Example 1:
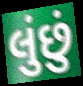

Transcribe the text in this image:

લુંછું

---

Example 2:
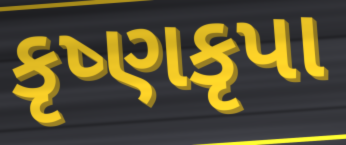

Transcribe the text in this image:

કૃષ્ણકૃપા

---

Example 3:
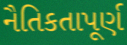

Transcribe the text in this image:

નૈતિકતાપૂર્ણ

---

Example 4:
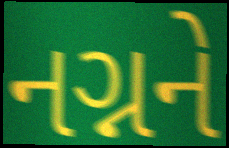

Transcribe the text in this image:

નગ્નને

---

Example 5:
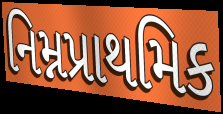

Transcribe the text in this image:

નિમ્નપ્રાથમિક